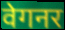
वेगनर